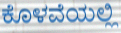
ಕೊಳವೆಯಲ್ಲಿ